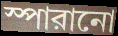
স্পারানো